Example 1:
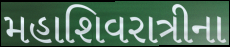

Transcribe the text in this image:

મહાશિવરાત્રીના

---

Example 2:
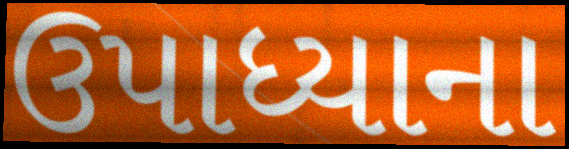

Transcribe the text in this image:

ઉપાધ્યાના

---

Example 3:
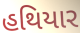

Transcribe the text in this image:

હથિયાર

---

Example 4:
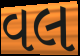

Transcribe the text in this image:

વલ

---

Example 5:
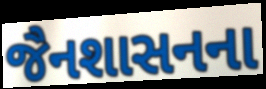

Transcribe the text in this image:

જૈનશાસનના